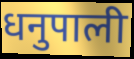
धनुपाली